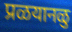
प्रळयानळु